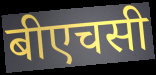
बीएचसी